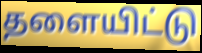
தளையிட்டு